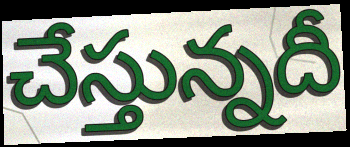
చేస్తున్నదీ